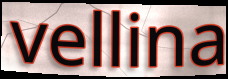
vellina